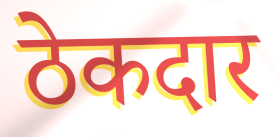
ठेकदार